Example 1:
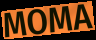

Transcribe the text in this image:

MOMA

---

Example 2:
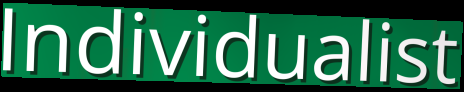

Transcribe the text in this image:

Individualist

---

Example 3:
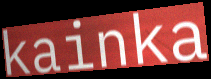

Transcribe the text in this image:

kainka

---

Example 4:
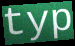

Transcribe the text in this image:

typ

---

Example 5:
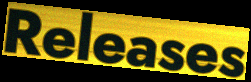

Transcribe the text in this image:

Releases